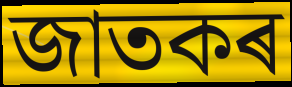
জাতকৰ